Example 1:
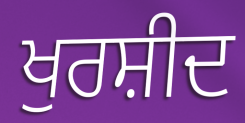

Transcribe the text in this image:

ਖੁਰਸ਼ੀਦ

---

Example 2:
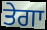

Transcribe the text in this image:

ਤੇਗਾ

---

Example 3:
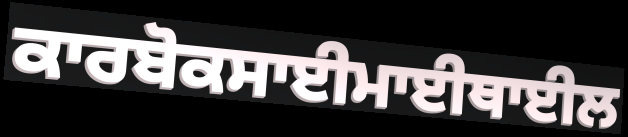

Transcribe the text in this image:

ਕਾਰਬੋਕਸਾਈਮਾਈਥਾਈਲ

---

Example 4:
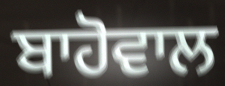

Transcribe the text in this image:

ਬਾਹੋਵਾਲ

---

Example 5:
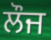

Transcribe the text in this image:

ਲੌਜ